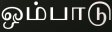
ஒம்பாடு